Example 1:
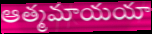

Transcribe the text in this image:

ఆత్మమాయయా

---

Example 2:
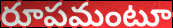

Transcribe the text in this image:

రూపమంటూ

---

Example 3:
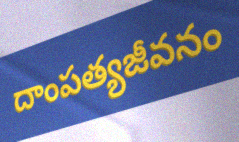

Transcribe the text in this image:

దాంపత్యజీవనం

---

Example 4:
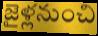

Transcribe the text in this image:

జైళ్లనుంచి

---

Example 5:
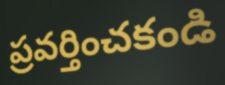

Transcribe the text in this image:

ప్రవర్తించకండి